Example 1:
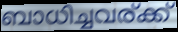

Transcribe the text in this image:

ബാധിച്ചവര്ക്ക്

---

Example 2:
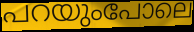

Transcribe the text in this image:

പറയുംപോലെ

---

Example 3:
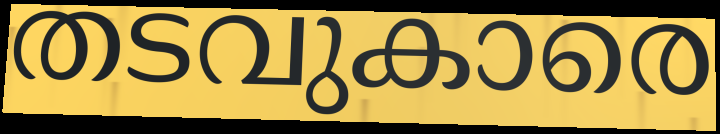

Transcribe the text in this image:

തടവുകാരെ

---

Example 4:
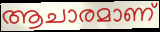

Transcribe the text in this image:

ആചാരമാണ്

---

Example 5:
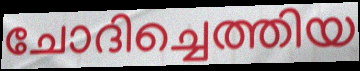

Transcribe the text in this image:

ചോദിച്ചെത്തിയ